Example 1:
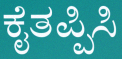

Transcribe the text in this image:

ಕೈತಪ್ಪಿಸಿ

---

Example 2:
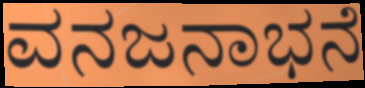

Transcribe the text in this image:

ವನಜನಾಭನೆ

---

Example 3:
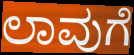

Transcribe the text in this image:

ಲಾವುಗೆ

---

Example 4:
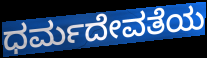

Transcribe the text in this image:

ಧರ್ಮದೇವತೆಯ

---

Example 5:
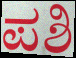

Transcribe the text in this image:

ಪಶಿ